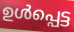
ഉൾപ്പെട്ട